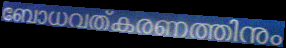
ബോധവത്കരണത്തിനും